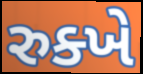
રુક્ખે